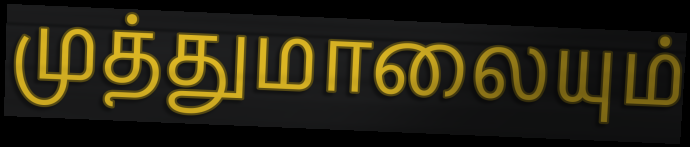
முத்துமாலையும்